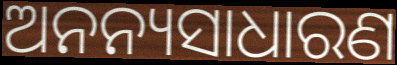
ଅନନ୍ୟସାଧାରଣ